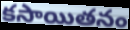
కసాయితనం